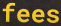
fees